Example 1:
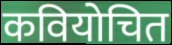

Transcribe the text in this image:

कवियोचित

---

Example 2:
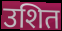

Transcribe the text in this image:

उशित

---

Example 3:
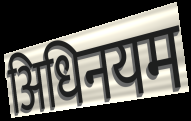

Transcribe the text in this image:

अिधिनयम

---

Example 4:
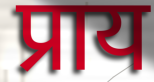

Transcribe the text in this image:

प्राय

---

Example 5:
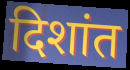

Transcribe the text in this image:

दिशांत